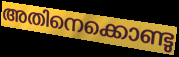
അതിനെക്കൊണ്ടു